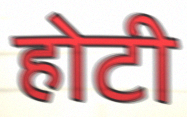
होटी